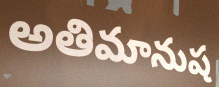
అతిమానుష